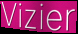
Vizier